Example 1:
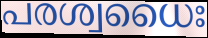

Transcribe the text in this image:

പരശ്വധൈഃ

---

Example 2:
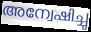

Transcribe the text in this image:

അന്വേഷിച്ചു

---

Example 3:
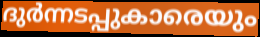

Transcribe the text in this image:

ദുർന്നടപ്പുകാരെയും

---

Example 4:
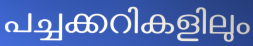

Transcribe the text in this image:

പച്ചക്കറികളിലും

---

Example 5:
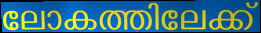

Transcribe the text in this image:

ലോകത്തിലേക്ക്